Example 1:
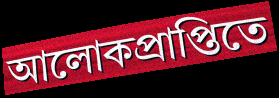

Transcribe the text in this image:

আলোকপ্রাপ্তিতে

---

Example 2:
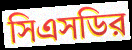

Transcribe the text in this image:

সিএসডির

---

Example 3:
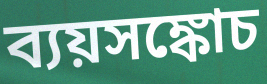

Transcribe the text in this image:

ব্যয়সঙ্কোচ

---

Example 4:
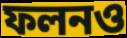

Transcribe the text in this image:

ফলনও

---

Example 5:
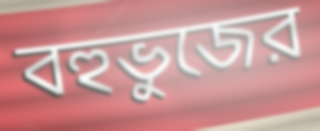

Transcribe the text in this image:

বহুভুজের